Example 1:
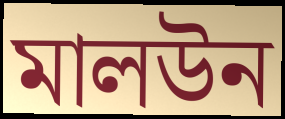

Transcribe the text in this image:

মালউন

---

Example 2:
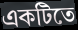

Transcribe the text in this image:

একটিতে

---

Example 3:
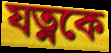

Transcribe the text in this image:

যত্নকে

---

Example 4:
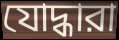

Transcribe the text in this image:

যোদ্ধারা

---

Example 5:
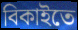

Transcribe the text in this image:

বিকাইতে